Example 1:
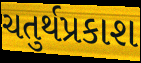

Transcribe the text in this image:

ચતુર્થપ્રકાશ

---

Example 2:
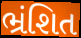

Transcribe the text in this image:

ભ્રંશિત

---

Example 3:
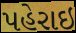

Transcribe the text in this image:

પહેરાઇ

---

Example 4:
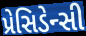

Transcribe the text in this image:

પ્રેસિડેન્સી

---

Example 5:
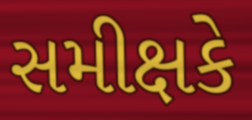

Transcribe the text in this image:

સમીક્ષકે